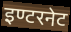
इण्टरनेट